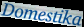
Domestika